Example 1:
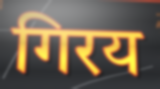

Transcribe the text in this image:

गिरय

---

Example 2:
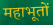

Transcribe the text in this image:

महाभूतों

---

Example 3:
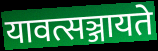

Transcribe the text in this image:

यावत्सञ्जायते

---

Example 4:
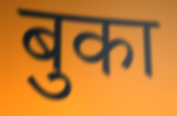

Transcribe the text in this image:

बुका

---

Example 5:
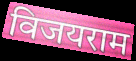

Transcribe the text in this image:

विजयराम